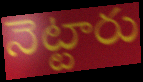
నెట్టారు